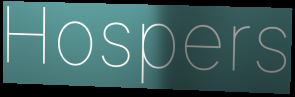
Hospers